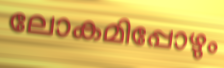
ലോകമിപ്പോഴും